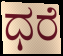
ಧರೆ